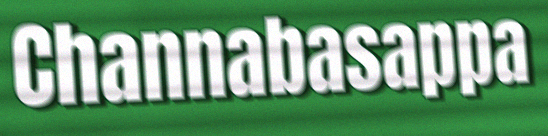
Channabasappa